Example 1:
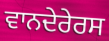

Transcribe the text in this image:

ਵਾਨਦੇਰੇਰਸ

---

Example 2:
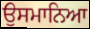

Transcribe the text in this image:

ਉਸਮਾਨਿਆ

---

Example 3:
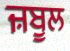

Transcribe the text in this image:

ਜ਼ਬੂਲ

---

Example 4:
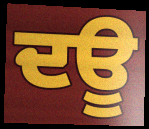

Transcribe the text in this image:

ਦਊ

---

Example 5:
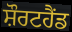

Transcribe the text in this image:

ਸ਼ੌਰਟਹੈਂਡ